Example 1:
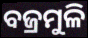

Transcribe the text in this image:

ବଜ୍ରମୁଳି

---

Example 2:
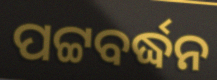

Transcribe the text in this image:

ପଟ୍ଟବର୍ଦ୍ଧନ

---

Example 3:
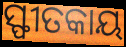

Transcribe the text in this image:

ସ୍ଫୀତକାୟ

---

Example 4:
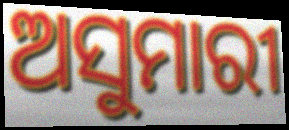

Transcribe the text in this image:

ଅସୁମାରୀ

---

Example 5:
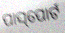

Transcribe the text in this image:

ପାସ୍‌ପୋର୍ଟ